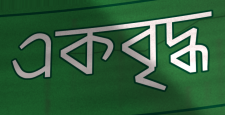
একবৃদ্ধ